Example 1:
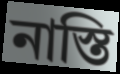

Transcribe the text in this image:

নাস্তি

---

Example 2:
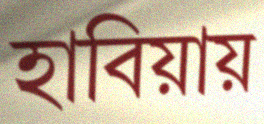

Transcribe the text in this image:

হাবিয়ায়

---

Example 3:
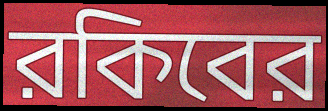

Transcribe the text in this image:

রকিবের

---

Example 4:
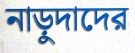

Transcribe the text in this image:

নাড়ুদাদের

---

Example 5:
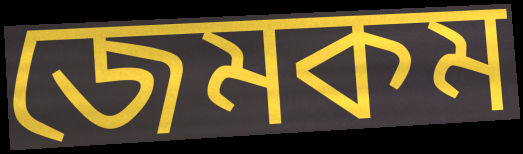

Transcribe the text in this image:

জেমকম